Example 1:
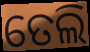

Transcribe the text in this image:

ତେଲି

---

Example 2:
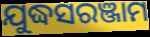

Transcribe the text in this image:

ଯୁଦ୍ଧସରଞ୍ଜାମ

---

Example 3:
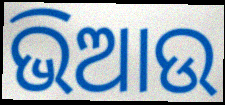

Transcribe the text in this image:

ଭିଆଉ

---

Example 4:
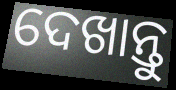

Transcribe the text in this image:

ଦେଖାନ୍ତୁ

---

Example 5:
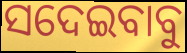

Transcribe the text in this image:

ସଦେଇବାବୁ